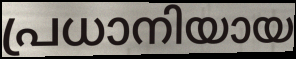
പ്രധാനിയായ